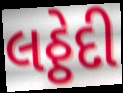
લઠ્ઠેદી